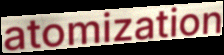
atomization